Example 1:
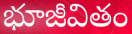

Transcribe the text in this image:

భూజీవితం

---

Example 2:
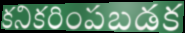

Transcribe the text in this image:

కనికరింపబడక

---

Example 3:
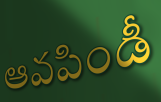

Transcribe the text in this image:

ఆవపిండీ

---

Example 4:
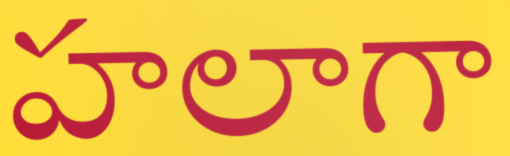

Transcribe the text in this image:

హలాగా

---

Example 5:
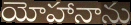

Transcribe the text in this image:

యోహానాను